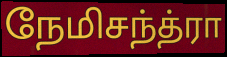
நேமிசந்த்ரா